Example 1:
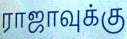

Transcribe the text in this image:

ராஜாவுக்கு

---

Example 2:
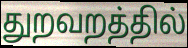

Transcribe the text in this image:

துறவறத்தில்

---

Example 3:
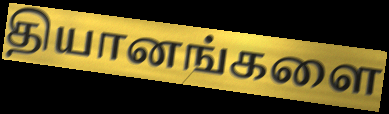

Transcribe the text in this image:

தியானங்களை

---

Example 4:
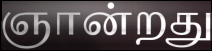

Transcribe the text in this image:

ஞான்றது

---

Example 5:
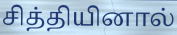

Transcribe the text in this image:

சித்தியினால்